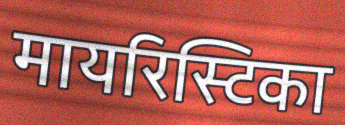
मायरिस्टिका